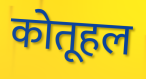
कोतूहल